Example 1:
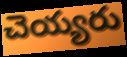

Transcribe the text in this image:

చెయ్యరు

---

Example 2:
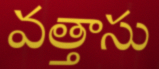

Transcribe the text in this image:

వత్తాసు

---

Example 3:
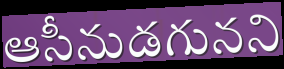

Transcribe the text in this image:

ఆసీనుడగునని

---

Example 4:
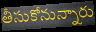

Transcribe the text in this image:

తీసుకోనున్నారు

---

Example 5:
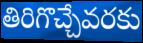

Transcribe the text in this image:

తిరిగొచ్చేవరకు